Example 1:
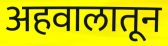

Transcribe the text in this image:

अहवालातून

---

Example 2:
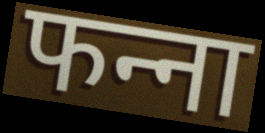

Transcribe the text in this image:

फन्ना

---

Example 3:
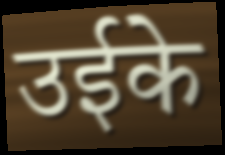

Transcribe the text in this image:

उईके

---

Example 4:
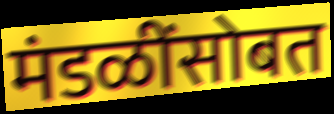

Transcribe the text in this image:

मंडळींसोबत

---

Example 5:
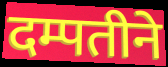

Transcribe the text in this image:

दम्पतीने